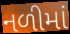
નળીમાં